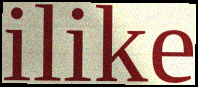
ilike